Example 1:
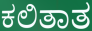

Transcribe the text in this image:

ಕಲಿತಾತ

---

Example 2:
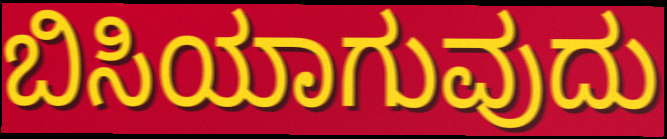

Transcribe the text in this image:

ಬಿಸಿಯಾಗುವುದು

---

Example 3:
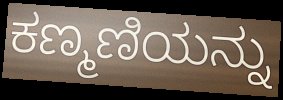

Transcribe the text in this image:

ಕಣ್ಮಣಿಯನ್ನು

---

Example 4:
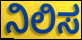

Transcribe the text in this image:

ನಿಲಿಸ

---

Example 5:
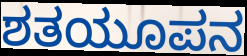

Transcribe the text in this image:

ಶತಯೂಪನ